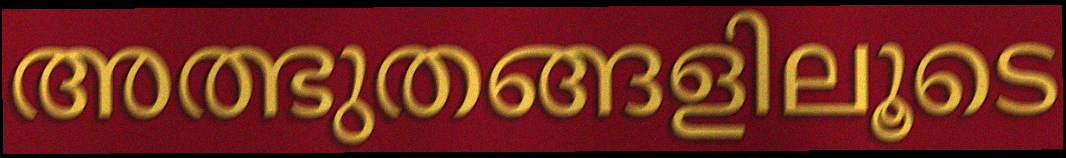
അത്ഭുതങ്ങളിലൂടെ